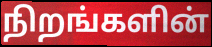
நிறங்களின்